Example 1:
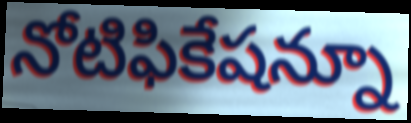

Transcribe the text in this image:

నోటిఫికేషన్నూ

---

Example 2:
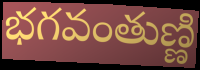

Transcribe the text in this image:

భగవంతుణ్ణి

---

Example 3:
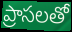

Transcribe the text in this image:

ప్రాసలతో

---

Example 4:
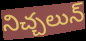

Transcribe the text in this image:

నిచ్చలున్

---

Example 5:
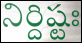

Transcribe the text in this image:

నిర్దిష్టః